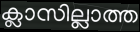
ക്ലാസില്ലാത്ത